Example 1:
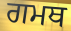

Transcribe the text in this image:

ਗਮਥ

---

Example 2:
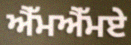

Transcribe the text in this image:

ਐੱਮਐੱਮਏ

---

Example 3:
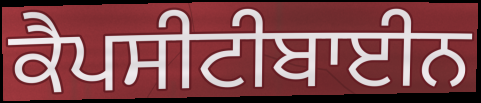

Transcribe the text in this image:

ਕੈਪਸੀਟੀਬਾਈਨ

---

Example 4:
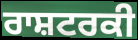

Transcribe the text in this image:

ਰਾਸ਼ਟਰਕੀ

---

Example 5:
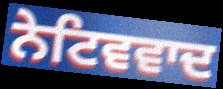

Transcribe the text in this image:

ਨੇਟਿਵਵਾਦ